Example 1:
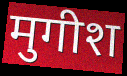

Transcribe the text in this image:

मुगीश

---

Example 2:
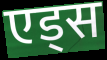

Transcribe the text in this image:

एड्स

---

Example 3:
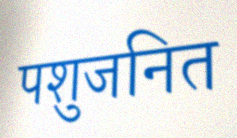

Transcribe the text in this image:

पशुजनित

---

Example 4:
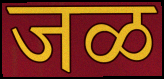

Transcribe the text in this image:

जळ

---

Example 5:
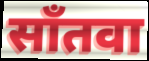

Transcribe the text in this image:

साँतवा